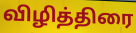
விழித்திரை